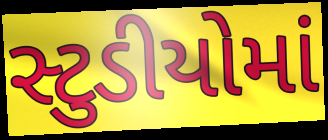
સ્ટુડીયોમાં